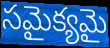
సమైక్యమై